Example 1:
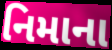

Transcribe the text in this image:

નિમાના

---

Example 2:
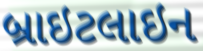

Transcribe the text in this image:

બ્રાઇટલાઇન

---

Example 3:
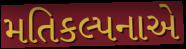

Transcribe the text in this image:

મતિકલ્પનાએ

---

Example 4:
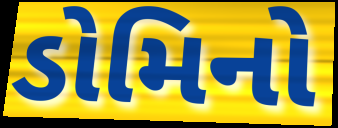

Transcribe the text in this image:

ડોમિનો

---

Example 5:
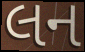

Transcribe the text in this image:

લન